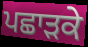
ਪਛਾੜਕੇ